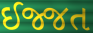
ઈજ્જત